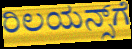
ರಿಲಯನ್ಸ್‌ಗೆ